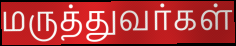
மருத்துவர்கள்